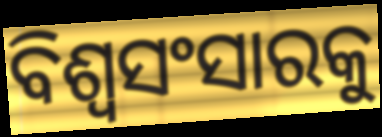
ବିଶ୍ୱସଂସାରକୁ